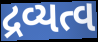
દ્રવ્યત્વ